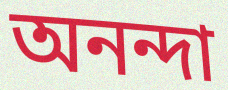
অনন্দা